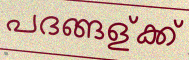
പദങ്ങള്ക്ക്